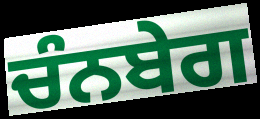
ਚੰਨਬੇਗ